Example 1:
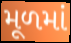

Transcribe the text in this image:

મૂળમાં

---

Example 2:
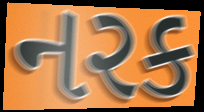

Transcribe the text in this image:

નરક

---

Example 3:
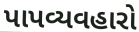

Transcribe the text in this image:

પાપવ્યવહારો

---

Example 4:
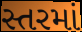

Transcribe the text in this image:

સ્તરમાં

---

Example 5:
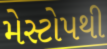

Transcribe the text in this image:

મેસ્ટોપથી